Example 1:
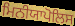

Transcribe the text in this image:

ਮਿਨੀਯਾਪੋਲਿਸ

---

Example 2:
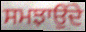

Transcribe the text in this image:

ਸਮਝਾਉਂਦੇ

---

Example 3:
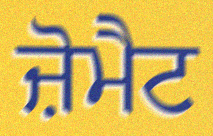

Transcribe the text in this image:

ਜ਼ੋਮੈਟ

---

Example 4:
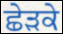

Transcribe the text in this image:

ਛੇੜਕੇ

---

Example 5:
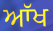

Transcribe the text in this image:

ਆੱਖ